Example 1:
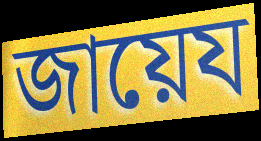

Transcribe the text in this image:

জায়েয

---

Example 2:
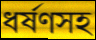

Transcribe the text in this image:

ধর্ষণসহ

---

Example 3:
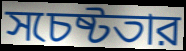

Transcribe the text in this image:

সচেষ্টতার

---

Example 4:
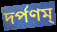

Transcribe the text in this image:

দর্পণম্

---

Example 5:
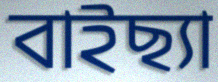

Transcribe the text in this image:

বাইছ্যা